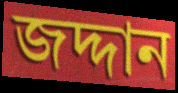
জদ্দান